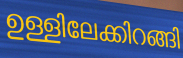
ഉള്ളിലേക്കിറങ്ങി